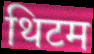
थिटम